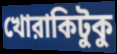
খোরাকিটুকু